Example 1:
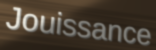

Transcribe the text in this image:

Jouissance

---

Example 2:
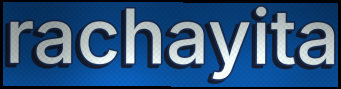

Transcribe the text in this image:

rachayita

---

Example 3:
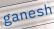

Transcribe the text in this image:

ganesh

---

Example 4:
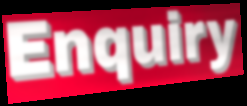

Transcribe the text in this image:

Enquiry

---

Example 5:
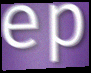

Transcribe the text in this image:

ep